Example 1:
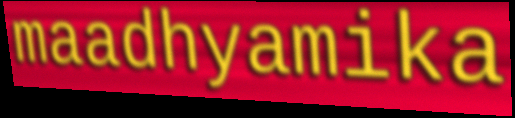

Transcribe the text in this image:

maadhyamika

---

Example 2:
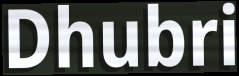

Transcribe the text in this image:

Dhubri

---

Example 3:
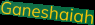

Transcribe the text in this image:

Ganeshaiah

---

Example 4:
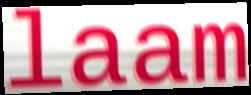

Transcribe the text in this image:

laam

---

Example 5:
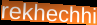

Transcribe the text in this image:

rekhechhi